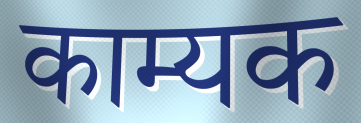
काम्यक